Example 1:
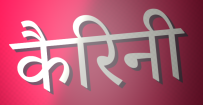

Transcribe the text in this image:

कैरिनी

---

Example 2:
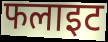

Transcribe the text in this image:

फलाइट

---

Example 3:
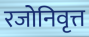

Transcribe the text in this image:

रजोनिवृत्त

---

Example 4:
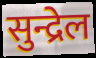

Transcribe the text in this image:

सुन्द्रेल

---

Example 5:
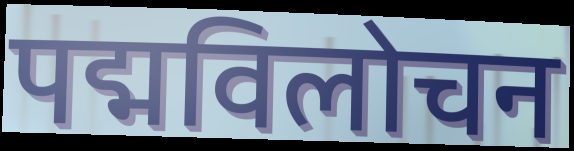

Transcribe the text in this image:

पद्मविलोचन